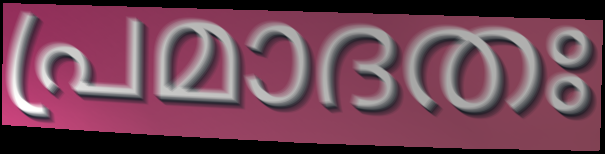
പ്രമാദതഃ